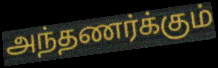
அந்தணர்க்கும்